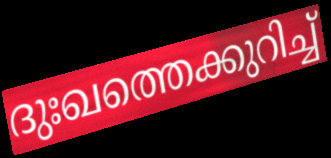
ദുഃഖത്തെക്കുറിച്ച്